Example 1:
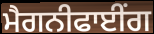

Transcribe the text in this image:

ਮੈਗਨੀਫਾਈਂਗ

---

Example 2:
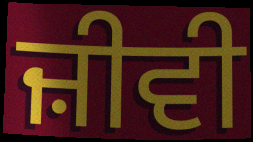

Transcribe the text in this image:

ਜ਼ੀਵੀ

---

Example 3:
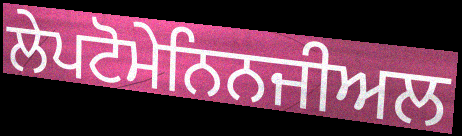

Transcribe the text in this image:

ਲੇਪਟੋਮੇਨਿਨਜੀਅਲ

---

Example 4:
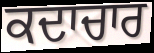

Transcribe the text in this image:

ਕਦਾਚਾਰ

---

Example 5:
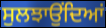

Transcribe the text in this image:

ਸੁਲਝਾਉਂਦਿਆਂ